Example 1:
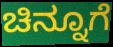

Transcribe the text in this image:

ಚಿನ್ನೂಗೆ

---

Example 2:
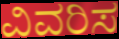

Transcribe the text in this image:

ವಿವರಿಸ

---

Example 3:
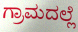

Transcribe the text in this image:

ಗ್ರಾಮದಲ್ಲೆ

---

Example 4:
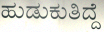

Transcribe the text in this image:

ಹುಡುಕುತಿದ್ದೆ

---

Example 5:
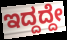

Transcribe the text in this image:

ಇದ್ದದ್ದೇ